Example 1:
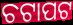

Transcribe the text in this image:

ଚଟାପଟ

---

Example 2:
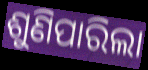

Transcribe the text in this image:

ଶୁଣିପାରିଲା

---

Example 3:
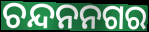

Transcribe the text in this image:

ଚନ୍ଦନନଗର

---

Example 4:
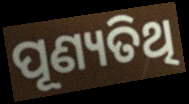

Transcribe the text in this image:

ପୂଣ୍ୟତିଥି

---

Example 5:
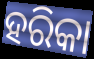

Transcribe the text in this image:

ହରିକା